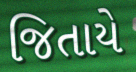
જિતાયે